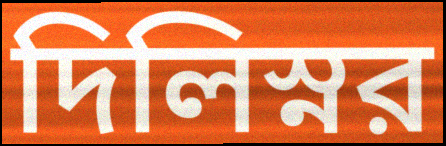
দিলিস্নর